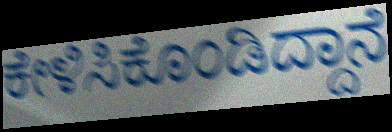
ಕೇಳಿಸಿಕೊಂಡಿದ್ದಾನೆ